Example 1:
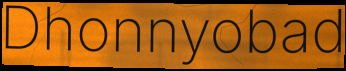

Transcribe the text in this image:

Dhonnyobad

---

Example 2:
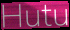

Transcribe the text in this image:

Hutu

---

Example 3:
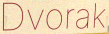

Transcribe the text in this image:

Dvorak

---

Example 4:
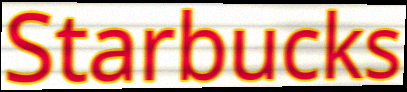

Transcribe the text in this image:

Starbucks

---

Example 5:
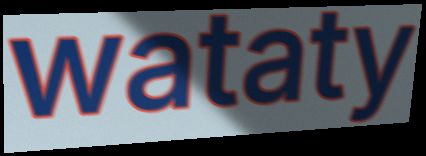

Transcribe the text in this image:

wataty